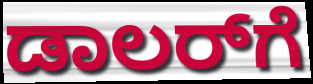
ಡಾಲರ್‌ಗೆ